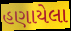
હણાયેલા